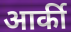
आर्की